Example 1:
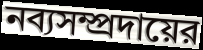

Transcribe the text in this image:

নব্যসম্প্রদায়ের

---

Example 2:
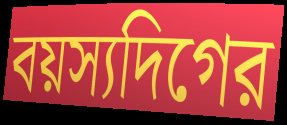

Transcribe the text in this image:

বয়স্যদিগের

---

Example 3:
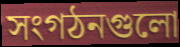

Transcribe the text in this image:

সংগঠনগুলো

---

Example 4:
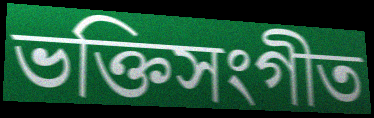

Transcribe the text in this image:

ভক্তিসংগীত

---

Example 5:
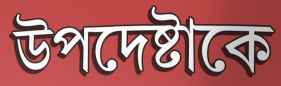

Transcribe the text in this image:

উপদেষ্টাকে